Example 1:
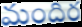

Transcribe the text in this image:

మందిర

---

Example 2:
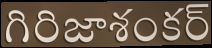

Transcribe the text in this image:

గిరిజాశంకర్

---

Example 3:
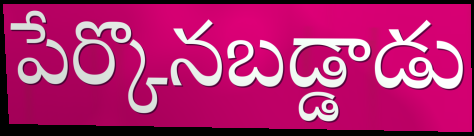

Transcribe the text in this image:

పేర్కొనబడ్డాడు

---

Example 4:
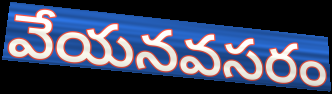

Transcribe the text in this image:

వేయనవసరం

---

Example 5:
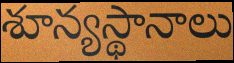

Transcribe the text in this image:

శూన్యస్థానాలు